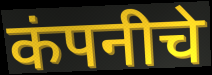
कंपनीचे